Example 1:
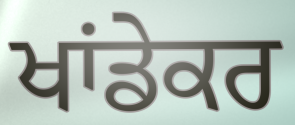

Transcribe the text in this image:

ਖਾਂਡੇਕਰ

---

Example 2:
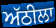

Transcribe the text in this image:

ਅੱਠੀਲਾ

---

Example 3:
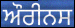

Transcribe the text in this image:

ਔਰੀਨਸ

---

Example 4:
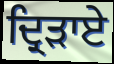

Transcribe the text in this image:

ਦ੍ਰਿੜਾਏ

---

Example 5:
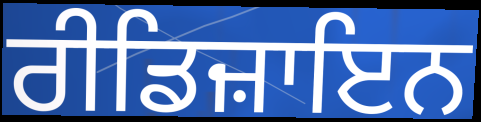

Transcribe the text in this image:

ਰੀਡਿਜ਼ਾਇਨ